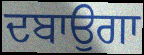
ਦਬਾਉਗਾ